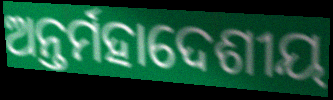
ଅନ୍ତର୍ମହାଦେଶୀୟ